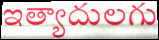
ఇత్యాదులగు